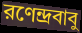
রণেন্দ্রবাবু